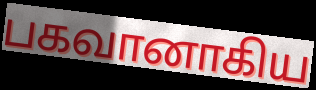
பகவானாகிய